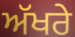
ਅੱਖਰੇ